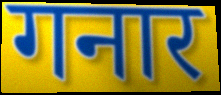
गनार